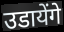
उडायेंगे